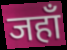
जहाँ